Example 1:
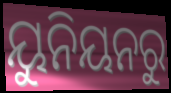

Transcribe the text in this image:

ୟୁନିୟନରୁ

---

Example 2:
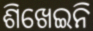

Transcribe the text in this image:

ଶିଖେଇନି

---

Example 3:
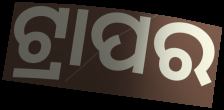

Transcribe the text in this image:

ଟ୍ରାପର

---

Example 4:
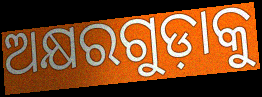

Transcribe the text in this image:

ଅକ୍ଷରଗୁଡ଼ାକୁ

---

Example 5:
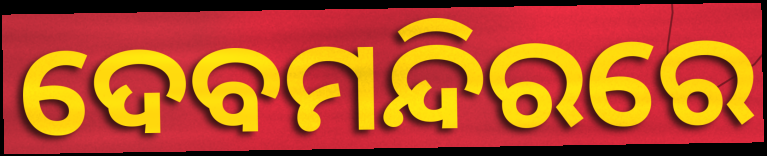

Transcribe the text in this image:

ଦେବମନ୍ଦିରରେ